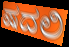
ಷದಲಿ